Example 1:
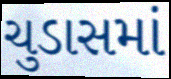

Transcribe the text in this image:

ચુડાસમાં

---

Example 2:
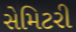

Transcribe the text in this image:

સેમિટરી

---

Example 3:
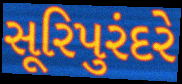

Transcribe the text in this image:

સૂરિપુરંદરે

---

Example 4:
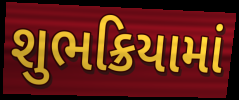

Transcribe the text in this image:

શુભક્રિયામાં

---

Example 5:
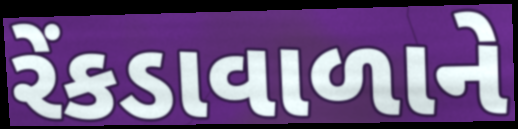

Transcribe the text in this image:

રેંકડાવાળાને